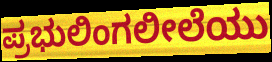
ಪ್ರಭುಲಿಂಗಲೀಲೆಯು